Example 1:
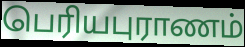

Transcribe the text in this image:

பெரியபுராணம்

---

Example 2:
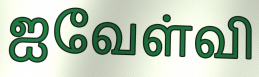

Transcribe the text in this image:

ஐவேள்வி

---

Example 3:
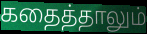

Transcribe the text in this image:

கதைத்தாலும்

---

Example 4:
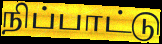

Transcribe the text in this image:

நிப்பாட்டு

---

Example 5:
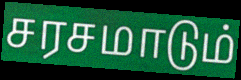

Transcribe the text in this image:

சரசமாடும்